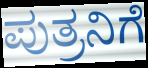
ಪುತ್ರನಿಗೆ